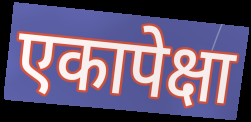
एकापेक्षा